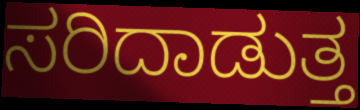
ಸರಿದಾಡುತ್ತ